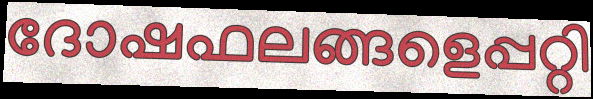
ദോഷഫലങ്ങളെപ്പറ്റി